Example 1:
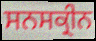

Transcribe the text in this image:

ਸਨਸਕ੍ਰੀਨ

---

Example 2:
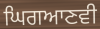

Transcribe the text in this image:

ਘਿਗਆਣਵੀ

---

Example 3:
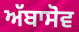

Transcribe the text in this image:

ਅੱਬਾਸੋਵ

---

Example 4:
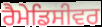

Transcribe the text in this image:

ਰੈਮੇਡਿਸੀਵਰ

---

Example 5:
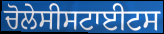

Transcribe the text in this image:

ਚੋਲੇਸੀਸਟਾਈਟਸ